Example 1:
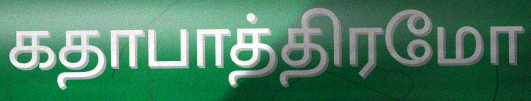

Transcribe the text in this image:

கதாபாத்திரமோ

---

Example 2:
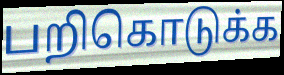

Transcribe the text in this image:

பறிகொடுக்க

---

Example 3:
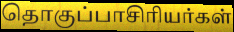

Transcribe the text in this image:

தொகுப்பாசிரியர்கள்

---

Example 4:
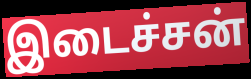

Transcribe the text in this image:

இடைச்சன்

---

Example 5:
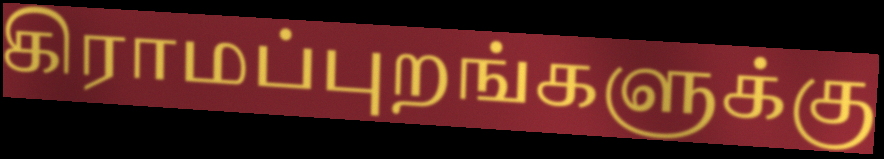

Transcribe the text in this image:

கிராமப்புறங்களுக்கு